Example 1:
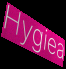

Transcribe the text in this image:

Hygiea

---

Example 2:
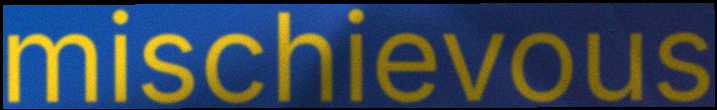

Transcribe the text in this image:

mischievous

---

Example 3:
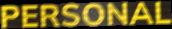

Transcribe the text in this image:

PERSONAL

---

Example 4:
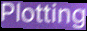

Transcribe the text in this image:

Plotting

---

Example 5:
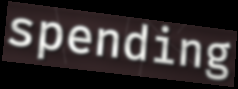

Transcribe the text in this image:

spending